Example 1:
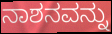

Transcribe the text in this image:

ನಾಶನವನ್ನು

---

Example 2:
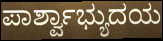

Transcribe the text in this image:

ಪಾರ್ಶ್ವಾಭ್ಯುದಯ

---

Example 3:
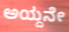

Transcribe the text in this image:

ಅಯ್ದನೇ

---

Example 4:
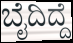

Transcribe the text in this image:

ಬೈದಿದ್ದೆ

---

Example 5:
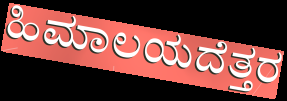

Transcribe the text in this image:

ಹಿಮಾಲಯದೆತ್ತರ